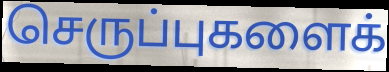
செருப்புகளைக்